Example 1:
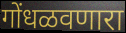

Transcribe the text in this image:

गोंधळवणारा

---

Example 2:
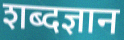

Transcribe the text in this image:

शब्दज्ञान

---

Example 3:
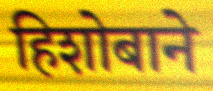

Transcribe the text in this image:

हिशोबाने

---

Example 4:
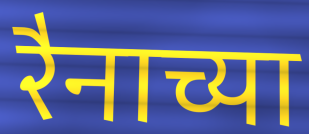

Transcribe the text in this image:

रैनाच्या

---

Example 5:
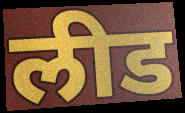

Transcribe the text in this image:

लीड